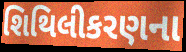
શિથિલીકરણના